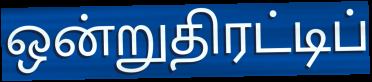
ஒன்றுதிரட்டிப்